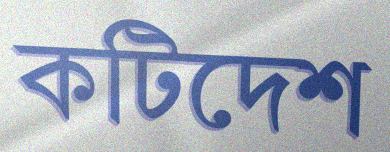
কটিদেশ